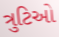
ત્રુટિઓ